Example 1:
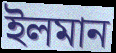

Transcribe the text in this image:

ইলমান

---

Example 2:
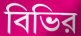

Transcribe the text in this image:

বিভির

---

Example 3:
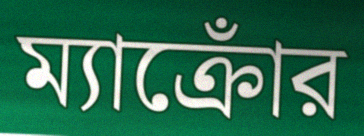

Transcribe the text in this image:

ম্যাক্রোঁর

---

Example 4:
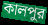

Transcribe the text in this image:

কালপুর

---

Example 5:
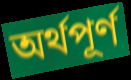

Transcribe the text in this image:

অর্থপূর্ণ